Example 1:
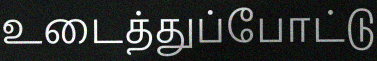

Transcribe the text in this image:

உடைத்துப்போட்டு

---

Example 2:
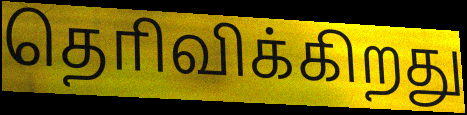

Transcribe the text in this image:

தெரிவிக்கிறது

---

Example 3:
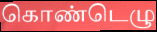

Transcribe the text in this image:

கொண்டெழு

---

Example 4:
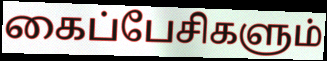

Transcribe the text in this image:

கைப்பேசிகளும்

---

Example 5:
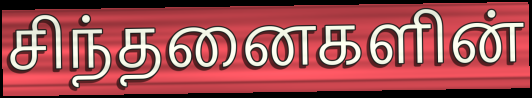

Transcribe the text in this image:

சிந்தனைகளின்